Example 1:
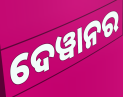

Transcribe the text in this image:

ଦେୱାନର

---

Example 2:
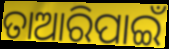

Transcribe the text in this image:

ତାଆରିପାଇଁ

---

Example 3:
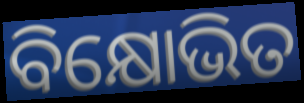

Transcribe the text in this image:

ବିକ୍ଷୋଭିତ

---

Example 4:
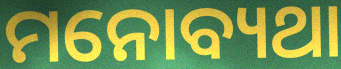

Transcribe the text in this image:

ମନୋବ୍ୟଥା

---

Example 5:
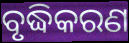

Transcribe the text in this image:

ବୃଦ୍ଧିକରଣ